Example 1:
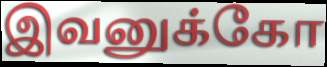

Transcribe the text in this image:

இவனுக்கோ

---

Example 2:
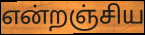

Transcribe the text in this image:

என்றஞ்சிய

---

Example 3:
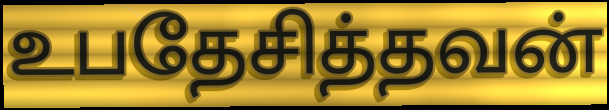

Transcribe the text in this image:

உபதேசித்தவன்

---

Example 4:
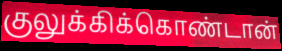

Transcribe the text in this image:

குலுக்கிக்கொண்டான்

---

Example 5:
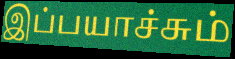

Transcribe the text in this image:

இப்பயாச்சும்